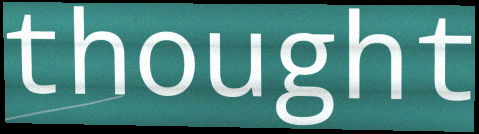
thought